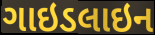
ગાઇડલાઇન